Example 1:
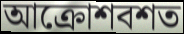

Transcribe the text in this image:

আক্রোশবশত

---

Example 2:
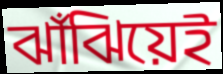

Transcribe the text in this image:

ঝাঁঝিয়েই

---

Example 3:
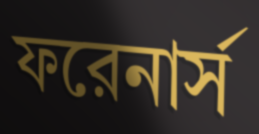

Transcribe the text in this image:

ফরেনার্স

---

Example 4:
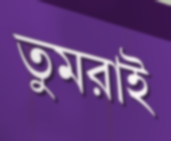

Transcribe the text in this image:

তুমরাই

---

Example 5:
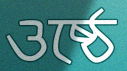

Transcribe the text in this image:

ওষ্ঠে